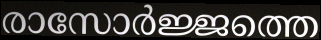
രാസോർജ്ജത്തെ